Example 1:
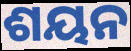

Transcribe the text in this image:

ଶୟନ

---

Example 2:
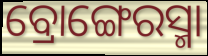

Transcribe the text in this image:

ବ୍ରୋଙ୍ଗେରସ୍ମା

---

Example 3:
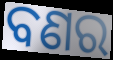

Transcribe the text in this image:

ବଣର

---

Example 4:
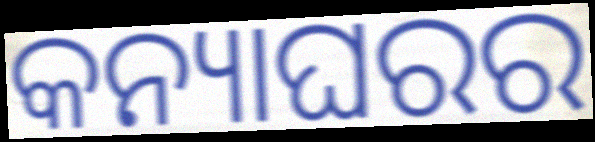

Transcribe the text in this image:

କନ୍ୟାଘରର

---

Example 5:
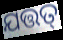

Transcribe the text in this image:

ଯତ୍ତତ୍